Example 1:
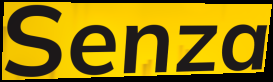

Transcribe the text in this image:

Senza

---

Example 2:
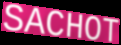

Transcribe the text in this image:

SACHOT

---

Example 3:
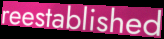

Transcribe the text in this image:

reestablished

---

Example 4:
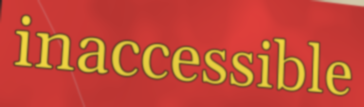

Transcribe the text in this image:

inaccessible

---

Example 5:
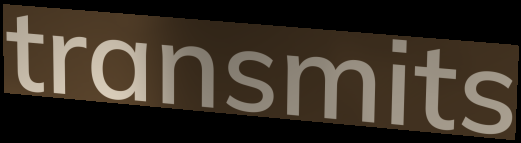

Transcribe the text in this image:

transmits